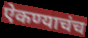
ऐकण्याचंच